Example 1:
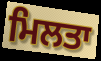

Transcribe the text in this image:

ਮਿਲਤਾ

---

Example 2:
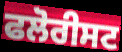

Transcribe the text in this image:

ਫਲੋਰੀਸਟ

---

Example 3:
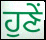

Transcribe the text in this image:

ਹੁਣੇਂ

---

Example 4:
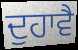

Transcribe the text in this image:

ਦੁਹਾਵੈ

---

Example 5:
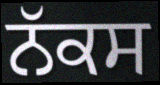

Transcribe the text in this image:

ਨੱਕਸ